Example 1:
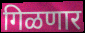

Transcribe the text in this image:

गिळणार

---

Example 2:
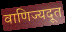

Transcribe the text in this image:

वाणिज्यदूत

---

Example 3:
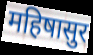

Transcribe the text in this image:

महिषासुर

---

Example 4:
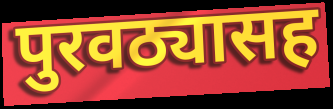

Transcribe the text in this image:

पुरवठ्यासह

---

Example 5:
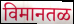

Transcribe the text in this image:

विमानतळ